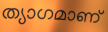
ത്യാഗമാണ്